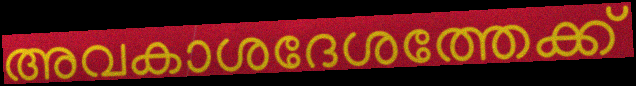
അവകാശദേശത്തേക്ക്